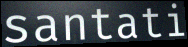
santati